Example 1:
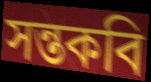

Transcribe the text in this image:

সন্তকবি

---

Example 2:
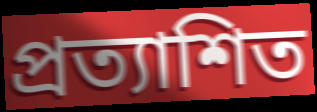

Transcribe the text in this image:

প্রত্যাশিত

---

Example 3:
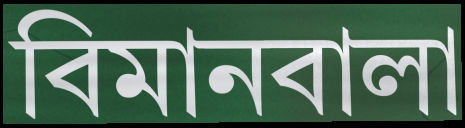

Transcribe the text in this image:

বিমানবালা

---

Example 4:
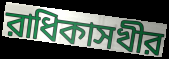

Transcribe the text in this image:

রাধিকাসখীর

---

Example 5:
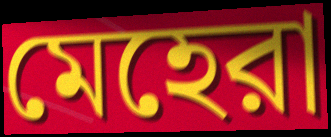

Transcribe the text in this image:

মেহেরা